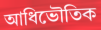
আধিভৌতিক